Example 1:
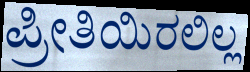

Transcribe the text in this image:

ಪ್ರೀತಿಯಿರಲಿಲ್ಲ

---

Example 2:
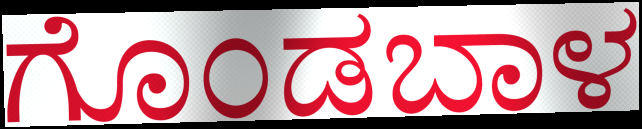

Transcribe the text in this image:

ಗೊಂಡಬಾಳ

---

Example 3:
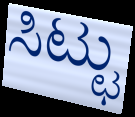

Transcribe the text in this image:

ಸಿಟ್ಟು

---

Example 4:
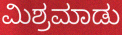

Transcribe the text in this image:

ಮಿಶ್ರಮಾಡು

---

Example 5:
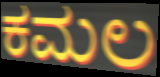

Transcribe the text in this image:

ಕಮಲ